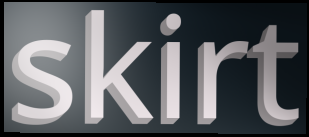
skirt